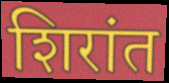
शिरांत